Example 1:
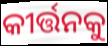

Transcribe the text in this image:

କୀର୍ତ୍ତନକୁ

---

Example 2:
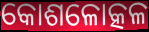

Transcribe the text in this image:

କୋଶଳୋତ୍କଳ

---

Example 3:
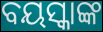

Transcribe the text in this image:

ବୟସ୍କାଙ୍କ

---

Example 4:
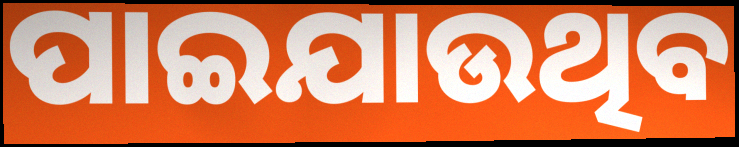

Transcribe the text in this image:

ପାଇଯାଉଥିବ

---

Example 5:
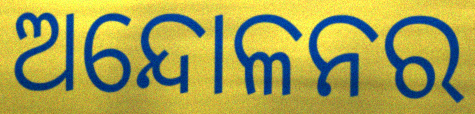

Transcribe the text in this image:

ଅନ୍ଦୋଳନର